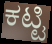
ಕಟ್ಟಿ